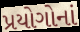
પ્રયોગોનાં